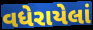
વધેરાયેલાં